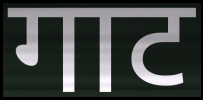
गाट